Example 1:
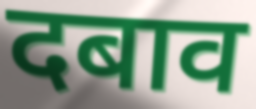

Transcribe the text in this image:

दबाव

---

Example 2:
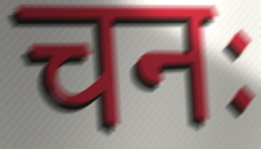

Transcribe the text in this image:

चनः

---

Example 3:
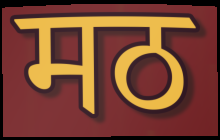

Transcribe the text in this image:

मठ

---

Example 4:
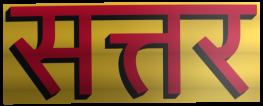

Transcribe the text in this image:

सत्तर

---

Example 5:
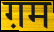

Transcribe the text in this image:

ग़म